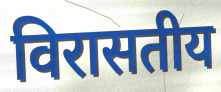
विरासतीय